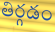
తిర్గడం